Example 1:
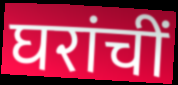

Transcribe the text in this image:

घरांचीं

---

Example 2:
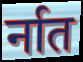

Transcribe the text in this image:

र्नात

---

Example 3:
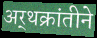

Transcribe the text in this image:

अर्थक्रांतीने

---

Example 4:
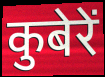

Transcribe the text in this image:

कुबेरें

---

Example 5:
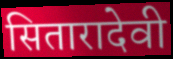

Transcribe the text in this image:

सितारादेवी